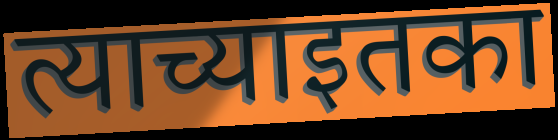
त्याच्याइतका